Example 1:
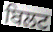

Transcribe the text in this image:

ਬਿਲਟ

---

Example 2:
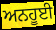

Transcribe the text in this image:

ਅਨਹੂਈ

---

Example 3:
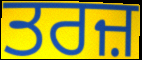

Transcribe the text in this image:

ਤਰਜ਼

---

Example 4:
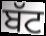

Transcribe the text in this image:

ਬੱਟ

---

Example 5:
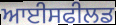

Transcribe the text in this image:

ਆਈਸਫੀਲਡ